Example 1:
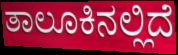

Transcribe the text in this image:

ತಾಲೂಕಿನಲ್ಲಿದೆ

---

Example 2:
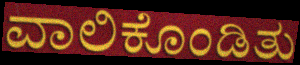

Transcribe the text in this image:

ವಾಲಿಕೊಂಡಿತು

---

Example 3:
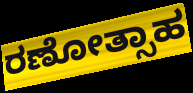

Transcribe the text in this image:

ರಣೋತ್ಸಾಹ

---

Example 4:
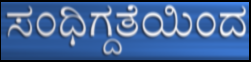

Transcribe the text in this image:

ಸಂಧಿಗ್ದತೆಯಿಂದ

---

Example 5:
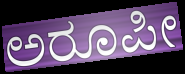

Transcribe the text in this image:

ಅರೂಪೀ